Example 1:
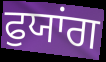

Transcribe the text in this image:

ਫੁਯਾਂਗ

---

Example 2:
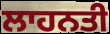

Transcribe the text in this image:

ਲਾਹਨਤੀ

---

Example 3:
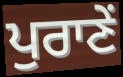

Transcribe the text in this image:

ਪੁਰਾਣੇਂ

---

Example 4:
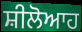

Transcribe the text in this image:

ਸ਼ੀਲੋਆਹ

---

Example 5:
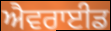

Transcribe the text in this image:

ਐਵਰਾਈਡ